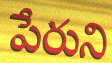
పేరుని